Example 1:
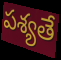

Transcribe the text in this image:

పశ్యతే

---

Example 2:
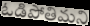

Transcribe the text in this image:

ఓడిపోతిమని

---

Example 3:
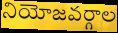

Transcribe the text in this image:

నియోజవర్గాల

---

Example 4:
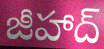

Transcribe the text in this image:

జీహాద్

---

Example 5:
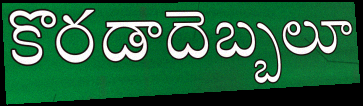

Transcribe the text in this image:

కొరడాదెబ్బలూ